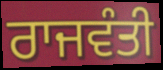
ਰਾਜਵੰਤੀ